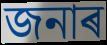
জনাৰ